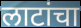
लाटांचा